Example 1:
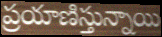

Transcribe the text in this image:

ప్రయాణిస్తున్నాయి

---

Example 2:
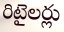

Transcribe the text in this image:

రిటైలర్లు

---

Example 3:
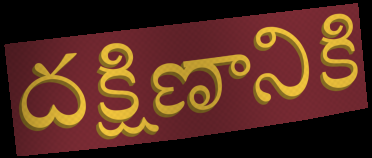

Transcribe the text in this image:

దక్షిణానికి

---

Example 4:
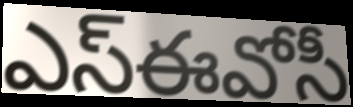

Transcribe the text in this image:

ఎస్ఈవోసీ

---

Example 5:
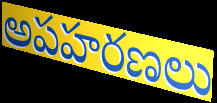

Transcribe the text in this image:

అపహరణలు